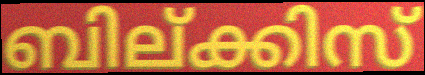
ബില്ക്കിസ്